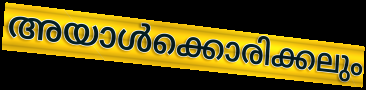
അയാൾക്കൊരിക്കലും